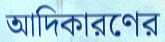
আদিকারণের